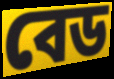
বেড